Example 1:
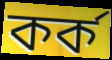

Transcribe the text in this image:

কর্ক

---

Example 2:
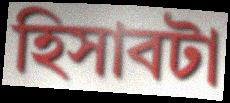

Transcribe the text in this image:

হিসাবটা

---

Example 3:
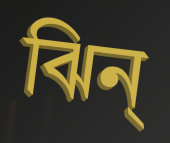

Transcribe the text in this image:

ঝিন্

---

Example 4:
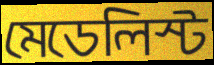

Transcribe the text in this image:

মেডেলিস্ট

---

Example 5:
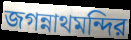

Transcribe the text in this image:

জগন্নাথমন্দির